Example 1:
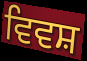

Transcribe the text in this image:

ਵਿਵਸ਼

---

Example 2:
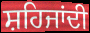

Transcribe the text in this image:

ਸ਼ਹਿਜਾਂਦੀ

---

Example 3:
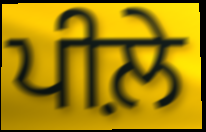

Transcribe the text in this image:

ਪੀਲ਼ੇ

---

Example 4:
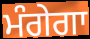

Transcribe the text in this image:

ਮੰਗੇਗਾ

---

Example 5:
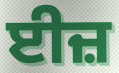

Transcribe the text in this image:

ਈਜ਼